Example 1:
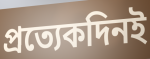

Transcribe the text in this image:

প্রত্যেকদিনই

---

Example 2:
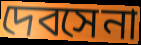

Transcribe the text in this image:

দেবসেনা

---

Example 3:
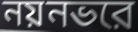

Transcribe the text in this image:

নয়নভরে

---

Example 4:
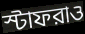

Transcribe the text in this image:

স্টাফরাও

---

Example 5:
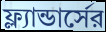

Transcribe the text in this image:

ফ্ল্যান্ডার্সের